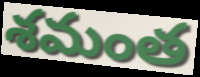
శమంత